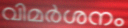
വിമർശനം